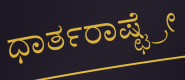
ಧಾರ್ತರಾಷ್ಟ್ರೇ